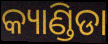
କ୍ୟାଣ୍ଡିଡା